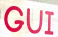
GUI